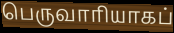
பெருவாரியாகப்